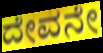
ದೇವನೇ